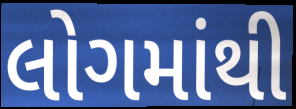
લોગમાંથી